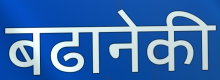
बढानेकी